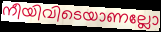
നീയിവിടെയാണല്ലോ